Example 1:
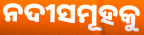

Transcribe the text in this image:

ନଦୀସମୂହକୁ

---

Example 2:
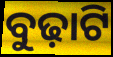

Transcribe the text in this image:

ବୁଢ଼ାଟି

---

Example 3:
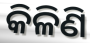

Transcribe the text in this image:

କିଳିଣି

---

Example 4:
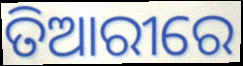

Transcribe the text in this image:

ତିଆରୀରେ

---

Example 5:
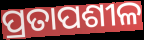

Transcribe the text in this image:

ପ୍ରତାପଶୀଳ